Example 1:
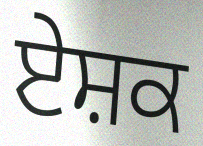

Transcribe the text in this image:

ਏਸ਼ਕ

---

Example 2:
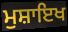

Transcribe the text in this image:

ਮੁਸ਼ਾਇਖ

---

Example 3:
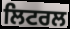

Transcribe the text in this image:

ਲਿਟਰਲ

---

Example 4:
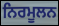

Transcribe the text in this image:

ਨਿਰਮੂਲਨ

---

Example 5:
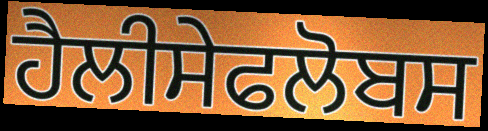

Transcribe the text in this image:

ਹੈਲੀਸੇਫਲੋਬਸ